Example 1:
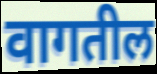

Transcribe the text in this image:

वागतील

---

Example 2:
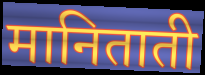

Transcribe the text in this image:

मानिताती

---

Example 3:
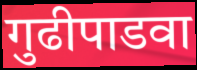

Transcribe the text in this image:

गुढीपाडवा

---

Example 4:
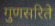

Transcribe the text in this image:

गुणसरिते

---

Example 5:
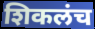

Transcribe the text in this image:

शिकलंच